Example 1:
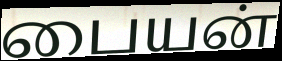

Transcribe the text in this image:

பையன்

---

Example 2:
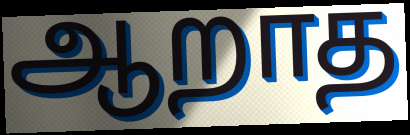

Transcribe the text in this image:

ஆறாத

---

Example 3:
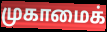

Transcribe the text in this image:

முகாமைக்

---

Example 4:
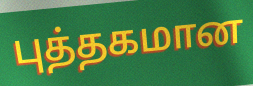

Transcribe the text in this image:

புத்தகமான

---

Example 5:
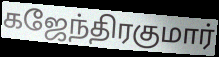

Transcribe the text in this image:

கஜேந்திரகுமார்